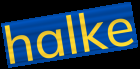
halke